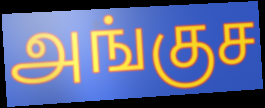
அங்குச